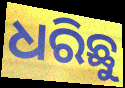
ଧରିଛୁ